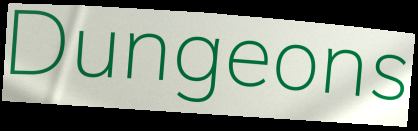
Dungeons